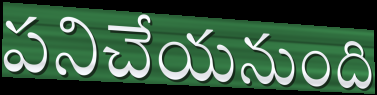
పనిచేయనుంది